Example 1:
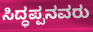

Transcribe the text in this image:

ಸಿದ್ಧಪ್ಪನವರು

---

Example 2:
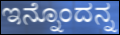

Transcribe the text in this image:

ಇನ್ನೊಂದನ್ನ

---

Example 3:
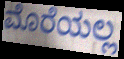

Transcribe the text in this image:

ಮೊರೆಯಲ್ಲ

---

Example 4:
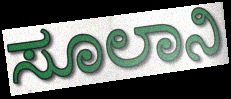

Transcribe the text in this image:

ಸೂಲಾನಿ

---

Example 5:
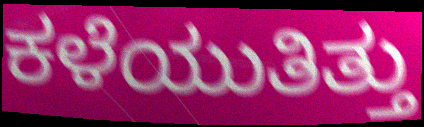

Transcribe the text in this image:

ಕಳೆಯುತಿತ್ತು